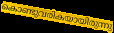
കൊണ്ടുവരികയായിരുന്നു